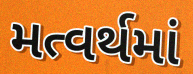
મત્વર્થમાં